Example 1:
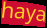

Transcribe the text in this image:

haya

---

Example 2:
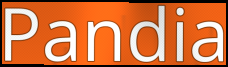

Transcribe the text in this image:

Pandia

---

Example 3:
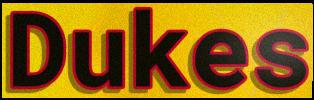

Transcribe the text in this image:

Dukes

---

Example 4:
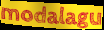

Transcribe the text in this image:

modalagu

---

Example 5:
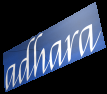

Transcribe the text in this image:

adhara